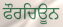
ਫੌਰਚਿਊਨ